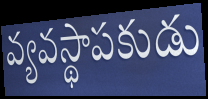
వ్యవస్థాపకుడు